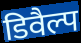
डिवैल्प